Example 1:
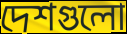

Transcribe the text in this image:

দেশগুলো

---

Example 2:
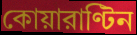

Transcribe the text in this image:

কোয়ারাণ্টিন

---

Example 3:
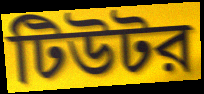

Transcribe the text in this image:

টিউটর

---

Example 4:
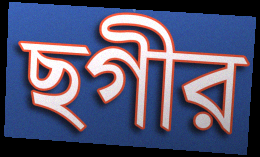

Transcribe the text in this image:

ছগীর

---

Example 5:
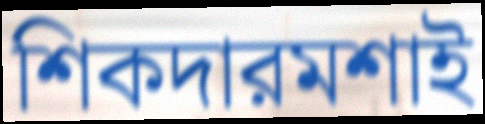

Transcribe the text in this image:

শিকদারমশাই